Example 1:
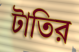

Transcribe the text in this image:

টাতির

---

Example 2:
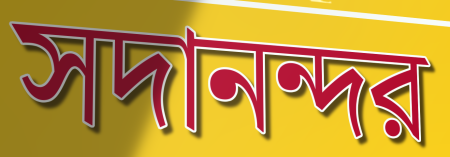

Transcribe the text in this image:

সদানন্দর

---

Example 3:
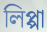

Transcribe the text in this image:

লিপ্পা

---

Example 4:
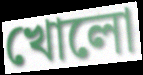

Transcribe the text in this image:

খোলো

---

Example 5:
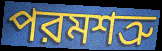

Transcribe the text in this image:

পরমশত্রু